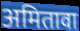
अमितावा